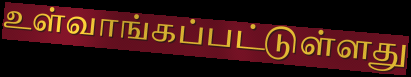
உள்வாங்கப்பட்டுள்ளது